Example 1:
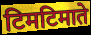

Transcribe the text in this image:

टिमटिमाते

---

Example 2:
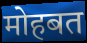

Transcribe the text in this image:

मोहबत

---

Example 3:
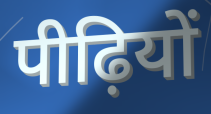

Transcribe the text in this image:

पीढ़ियों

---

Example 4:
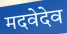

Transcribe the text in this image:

मदवेदेव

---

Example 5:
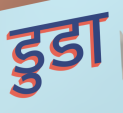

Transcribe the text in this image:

डुडा